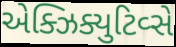
એક્ઝિક્યુટિવ્સે